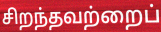
சிறந்தவற்றைப்